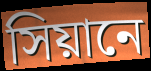
সিয়ানে